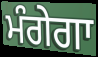
ਮੰਗੇਗਾ